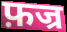
फ़ज्र